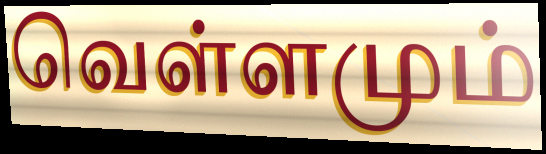
வெள்ளமும்